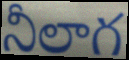
నీలాగ